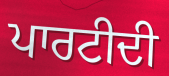
ਪਾਰਟੀਦੀ